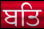
ਬਤਿ